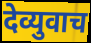
देव्युवाच